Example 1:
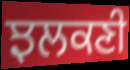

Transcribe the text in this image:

ਝਲਕਣੀ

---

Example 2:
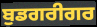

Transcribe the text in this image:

ਬੁਡਗਰੀਗਰ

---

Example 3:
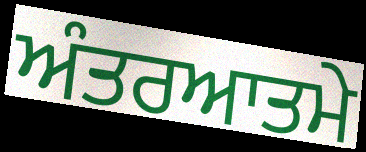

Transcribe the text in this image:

ਅੰਤਰਆਤਮੇ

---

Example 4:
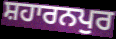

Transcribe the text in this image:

ਸ਼ਹਾਰਨਪੁਰ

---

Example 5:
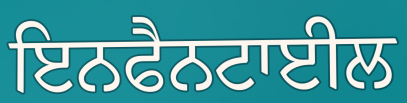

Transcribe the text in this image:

ਇਨਫੈਨਟਾਈਲ